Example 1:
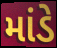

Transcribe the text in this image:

માંડે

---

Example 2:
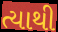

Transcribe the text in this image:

ત્યાથી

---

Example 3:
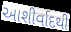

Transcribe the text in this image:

આશીર્વાદથી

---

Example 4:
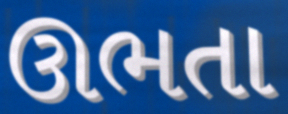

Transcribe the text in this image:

ઊભતા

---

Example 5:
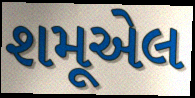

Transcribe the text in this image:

શમૂએલ